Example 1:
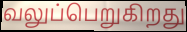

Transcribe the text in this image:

வலுப்பெறுகிறது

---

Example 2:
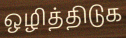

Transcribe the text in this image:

ஒழித்திடுக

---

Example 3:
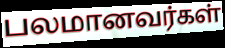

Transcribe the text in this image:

பலமானவர்கள்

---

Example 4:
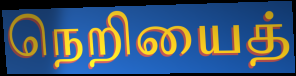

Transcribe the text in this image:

நெறியைத்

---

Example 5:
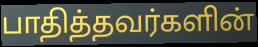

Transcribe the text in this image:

பாதித்தவர்களின்